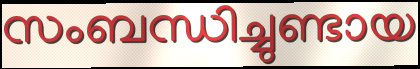
സംബന്ധിച്ചുണ്ടായ